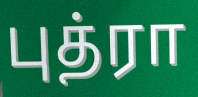
புத்ரா